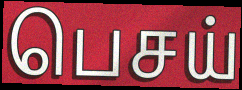
பெசய்